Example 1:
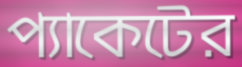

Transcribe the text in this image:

প্যাকেটের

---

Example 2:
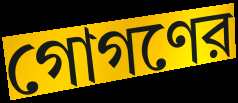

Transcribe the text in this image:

গোগণের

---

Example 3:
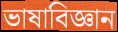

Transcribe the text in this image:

ভাষাবিজ্ঞান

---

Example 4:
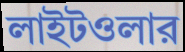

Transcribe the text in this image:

লাইটওলার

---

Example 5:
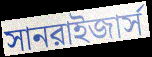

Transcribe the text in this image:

সানরাইজার্স